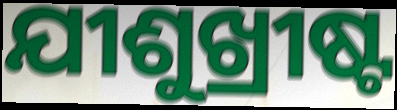
ଯୀଶୁଖ୍ରୀଷ୍ଟ